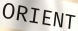
ORIENT